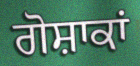
ਗੋਸ਼ਾਕਾਂ